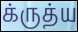
க்ருத்ய